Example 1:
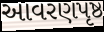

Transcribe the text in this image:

આવરણપૃષ્ઠ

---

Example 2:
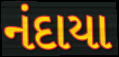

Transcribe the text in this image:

નંદાયા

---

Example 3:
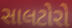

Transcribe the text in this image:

સાલટોરો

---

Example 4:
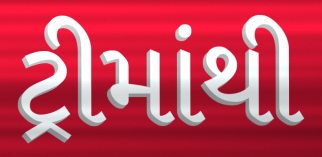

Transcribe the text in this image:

ટ્રીમાંથી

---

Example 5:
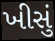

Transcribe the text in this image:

ખીસું